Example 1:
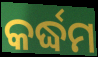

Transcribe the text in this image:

କର୍ଦ୍ଧମ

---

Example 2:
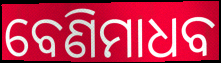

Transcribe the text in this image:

ବେଣିମାଧବ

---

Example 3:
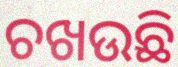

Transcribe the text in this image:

ଚଖଉଛି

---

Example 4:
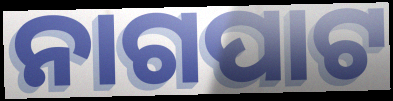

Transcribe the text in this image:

ନାଗପାଟ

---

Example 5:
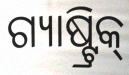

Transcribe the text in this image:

ଗ୍ୟାଷ୍ଟ୍ରିକ୍